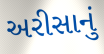
અરીસાનું